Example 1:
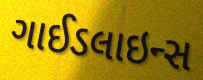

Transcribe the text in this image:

ગાઈડલાઇન્સ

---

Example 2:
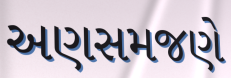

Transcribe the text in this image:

અણસમજણે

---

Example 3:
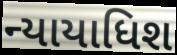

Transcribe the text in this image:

ન્યાયાધિશ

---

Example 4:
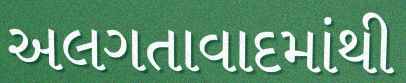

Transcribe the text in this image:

અલગતાવાદમાંથી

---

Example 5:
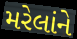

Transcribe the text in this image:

મરેલાંને